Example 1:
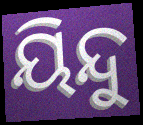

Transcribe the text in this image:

ୟିନ୍ଦୁ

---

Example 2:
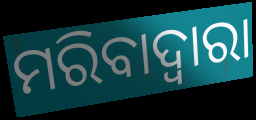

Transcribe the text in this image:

ମରିବାଦ୍ୱାରା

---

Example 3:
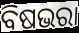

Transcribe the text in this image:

ବିଷଭରା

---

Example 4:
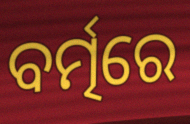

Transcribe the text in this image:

ବର୍ତ୍ମରେ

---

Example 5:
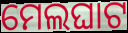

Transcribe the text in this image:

ମେଲଘାଟ